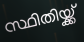
സ്ഥിതിയ്ക്ക്